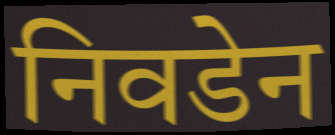
निवडेन